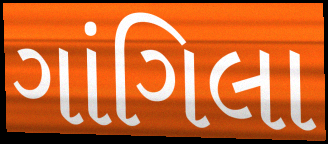
ગાંગિલા